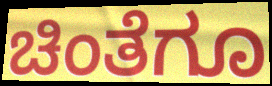
ಚಿಂತೆಗೂ